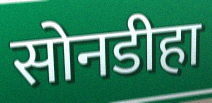
सोनडीहा